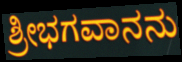
ಶ್ರೀಭಗವಾನನು